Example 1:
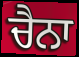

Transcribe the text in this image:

ਚੈਨਾ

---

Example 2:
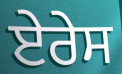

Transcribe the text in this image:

ਏਰੇਸ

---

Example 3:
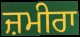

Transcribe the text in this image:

ਜ਼ਮੀਰਾ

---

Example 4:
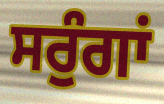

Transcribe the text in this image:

ਸਰੁੰਗਾਂ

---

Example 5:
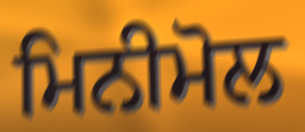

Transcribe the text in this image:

ਮਿਨੀਮੋਲ